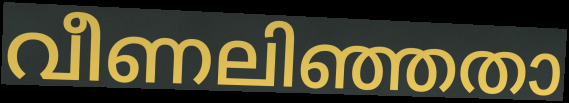
വീണലിഞ്ഞതാ